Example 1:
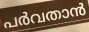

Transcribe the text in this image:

പർവതാൻ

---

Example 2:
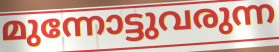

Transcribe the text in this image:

മുന്നോട്ടുവരുന്ന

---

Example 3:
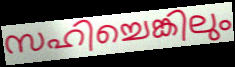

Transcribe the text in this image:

സഹിച്ചെങ്കിലും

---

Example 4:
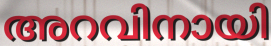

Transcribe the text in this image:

അറവിനായി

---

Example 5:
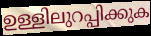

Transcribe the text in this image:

ഉള്ളിലുറപ്പിക്കുക